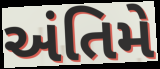
અંતિમે